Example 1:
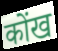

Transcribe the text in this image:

कोंख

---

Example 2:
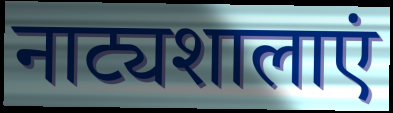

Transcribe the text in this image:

नाट्यशालाएं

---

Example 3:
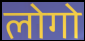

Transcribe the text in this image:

लोगो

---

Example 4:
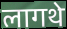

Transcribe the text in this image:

लागथे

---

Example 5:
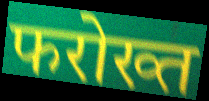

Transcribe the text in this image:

फरोख्त